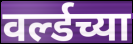
वर्ल्डच्या